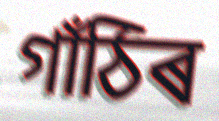
গাঁঠিৰ